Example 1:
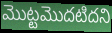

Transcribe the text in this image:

మొట్టమొదటిదని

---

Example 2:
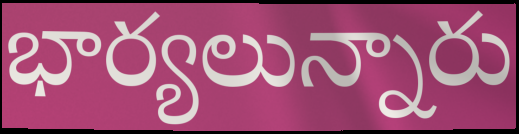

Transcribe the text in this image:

భార్యలున్నారు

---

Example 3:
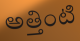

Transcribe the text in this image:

అత్తింటి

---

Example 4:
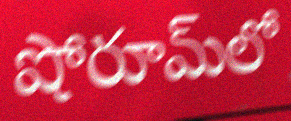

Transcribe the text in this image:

షోరూమ్‌లో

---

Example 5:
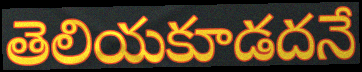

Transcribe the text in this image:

తెలియకూడదనే